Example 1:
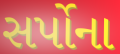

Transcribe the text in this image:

સર્પોના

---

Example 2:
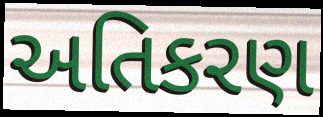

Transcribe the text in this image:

અતિકરણ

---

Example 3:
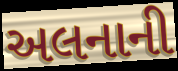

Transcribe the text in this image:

અલનાની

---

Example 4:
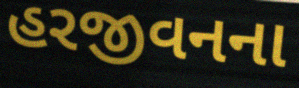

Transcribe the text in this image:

હરજીવનના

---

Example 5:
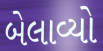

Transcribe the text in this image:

બેલાવ્યો